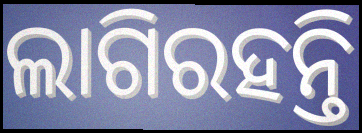
ଲାଗିରହନ୍ତି